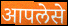
आपलेसे